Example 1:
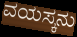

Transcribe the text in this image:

ವಯಸ್ಕನು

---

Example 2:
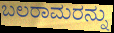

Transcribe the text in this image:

ಬಲರಾಮರನ್ನು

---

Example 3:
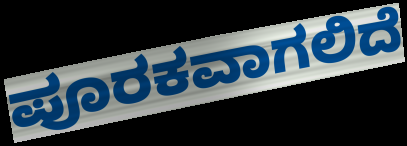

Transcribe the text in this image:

ಪೂರಕವಾಗಲಿದೆ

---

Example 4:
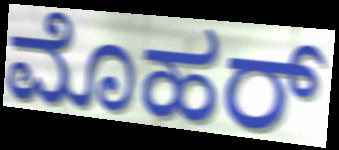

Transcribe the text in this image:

ಮೊಹರ್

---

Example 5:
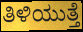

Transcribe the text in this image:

ತಿಳಿಯುತ್ತೆ